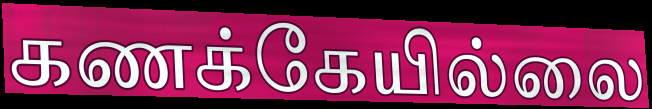
கணக்கேயில்லை